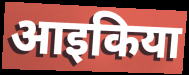
आइकिया